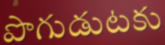
పొగుడుటకు